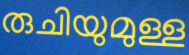
രുചിയുമുള്ള